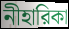
নীহারিকা